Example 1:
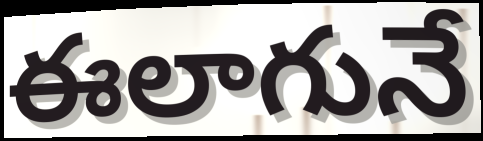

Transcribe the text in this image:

ఈలాగునే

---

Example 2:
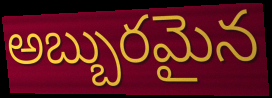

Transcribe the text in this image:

అబ్బురమైన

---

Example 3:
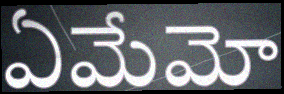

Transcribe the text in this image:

ఏమేమో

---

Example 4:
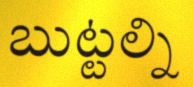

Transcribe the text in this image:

బుట్టల్ని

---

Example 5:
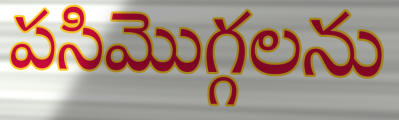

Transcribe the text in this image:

పసిమొగ్గలను